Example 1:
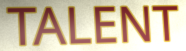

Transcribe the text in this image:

TALENT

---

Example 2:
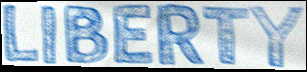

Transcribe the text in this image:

LIBERTY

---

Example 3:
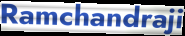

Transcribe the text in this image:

Ramchandraji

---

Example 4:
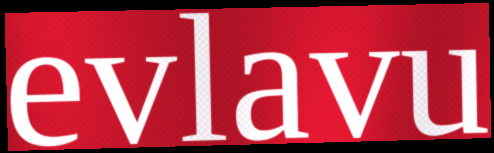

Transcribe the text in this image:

evlavu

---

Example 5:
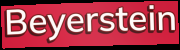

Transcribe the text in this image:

Beyerstein